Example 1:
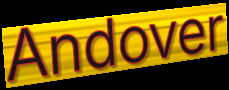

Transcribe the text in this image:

Andover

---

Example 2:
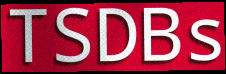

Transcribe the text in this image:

TSDBs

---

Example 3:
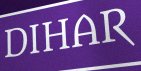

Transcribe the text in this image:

DIHAR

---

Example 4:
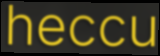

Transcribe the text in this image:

heccu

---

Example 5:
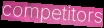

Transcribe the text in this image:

competitors